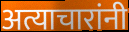
अत्याचारांनी